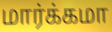
மார்க்கமா